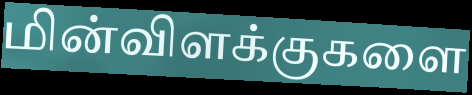
மின்விளக்குகளை